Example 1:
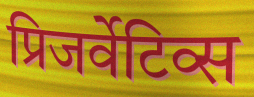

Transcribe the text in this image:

प्रिजर्वेटिव्स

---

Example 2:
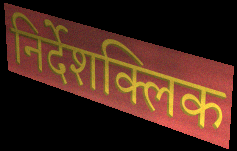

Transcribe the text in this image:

निर्देशक्लिक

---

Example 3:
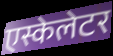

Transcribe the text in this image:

एस्केलेटर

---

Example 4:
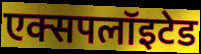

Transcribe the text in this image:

एक्सपलॉइटेड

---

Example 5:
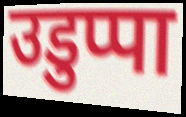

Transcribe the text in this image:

उडुप्पा